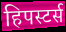
हिपस्टर्स